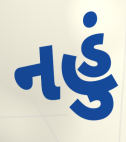
નહું